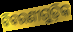
ବିବରଣୀଗୁଡ଼ିକ